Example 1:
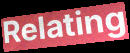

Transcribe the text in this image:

Relating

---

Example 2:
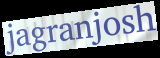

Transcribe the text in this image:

jagranjosh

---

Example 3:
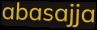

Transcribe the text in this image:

abasajja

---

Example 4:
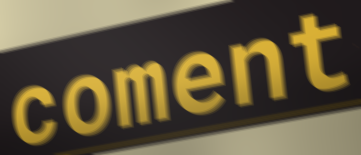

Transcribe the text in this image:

coment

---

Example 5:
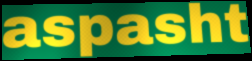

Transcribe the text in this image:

aspasht